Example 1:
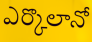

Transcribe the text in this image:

ఎర్కొలానో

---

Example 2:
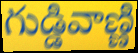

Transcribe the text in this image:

గుడ్డివాణ్ణి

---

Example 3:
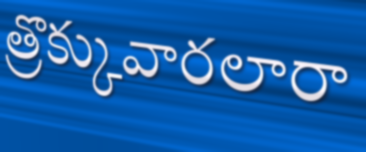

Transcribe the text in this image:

త్రొక్కువారలారా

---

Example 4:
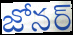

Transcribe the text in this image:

జోనర్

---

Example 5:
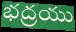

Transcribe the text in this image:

భద్రయు